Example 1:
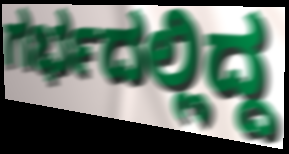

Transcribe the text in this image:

ಗರ್ಭದಲ್ಲಿದ್ದ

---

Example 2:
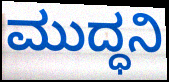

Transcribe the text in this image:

ಮುದ್ಧನಿ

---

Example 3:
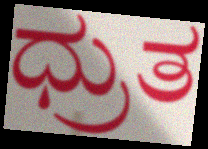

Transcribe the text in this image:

ಧ್ರುತ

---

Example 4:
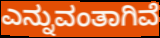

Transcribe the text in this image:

ಎನ್ನುವಂತಾಗಿವೆ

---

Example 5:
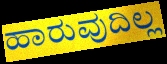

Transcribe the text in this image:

ಹಾರುವುದಿಲ್ಲ